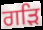
ਗੜਿ